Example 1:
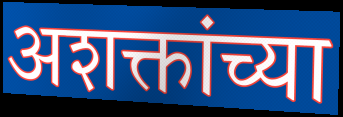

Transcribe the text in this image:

अशक्तांच्या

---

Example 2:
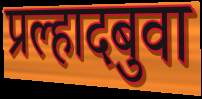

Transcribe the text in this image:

प्रल्हादबुवा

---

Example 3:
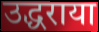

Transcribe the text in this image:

उद्धराया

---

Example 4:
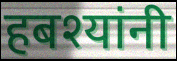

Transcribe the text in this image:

हबश्यांनी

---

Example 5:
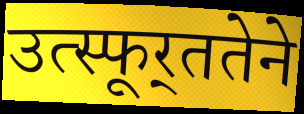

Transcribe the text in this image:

उत्स्फूर्ततेने